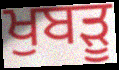
ਖੁਬੜੂ